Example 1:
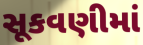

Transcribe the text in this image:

સૂકવણીમાં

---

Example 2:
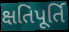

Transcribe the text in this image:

ક્ષતિપૂર્તિ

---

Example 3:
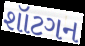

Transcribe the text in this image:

શૉટગન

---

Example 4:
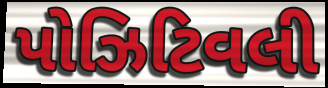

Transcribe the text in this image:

પોઝિટિવલી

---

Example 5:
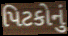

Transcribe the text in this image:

પિટકોનું